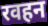
रवहन